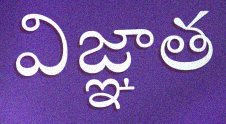
విజ్ఞాత